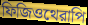
ফিজিওথেরাপি